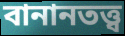
বানানতত্ত্ব